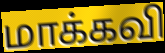
மாக்கவி